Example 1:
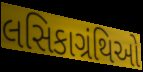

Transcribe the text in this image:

લસિકાગ્રંથિઓ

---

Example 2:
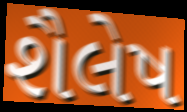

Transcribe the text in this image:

શૈલેષ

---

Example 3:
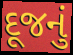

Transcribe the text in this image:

દૂજનું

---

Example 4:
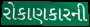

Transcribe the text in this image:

રોકાણકારની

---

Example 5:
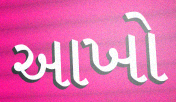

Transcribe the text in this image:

આખો